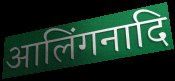
आलिंगनादि